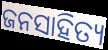
ଜନସାହିତ୍ୟ